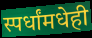
स्पर्धांमधेही